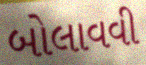
બોલાવવી